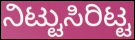
ನಿಟ್ಟುಸಿರಿಟ್ಟ